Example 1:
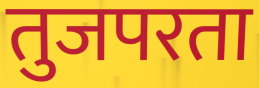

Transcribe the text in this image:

तुजपरता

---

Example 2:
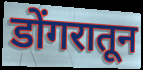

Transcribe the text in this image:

डोंगरातून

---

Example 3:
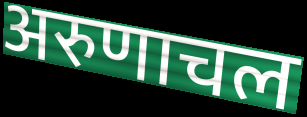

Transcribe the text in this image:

अरुणाचल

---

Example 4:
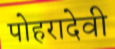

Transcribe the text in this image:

पोहरादेवी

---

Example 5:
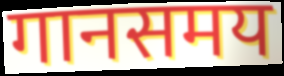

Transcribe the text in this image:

गानसमय